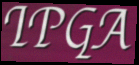
IPGA